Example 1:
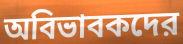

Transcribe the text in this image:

অবিভাবকদের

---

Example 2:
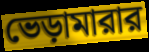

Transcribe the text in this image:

ভেড়ামারার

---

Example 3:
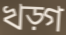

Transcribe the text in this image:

খড়্গ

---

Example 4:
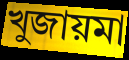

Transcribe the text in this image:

খুজায়মা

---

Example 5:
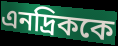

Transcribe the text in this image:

এনদ্রিককে